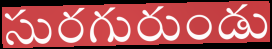
సురగురుండు